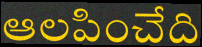
ఆలపించేది